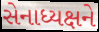
સેનાધ્યક્ષને